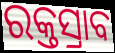
ରକ୍ତସ୍ରାବ